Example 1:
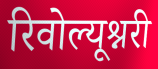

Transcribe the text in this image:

रिवोल्यूश्नरी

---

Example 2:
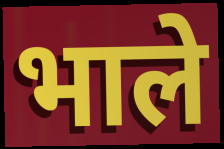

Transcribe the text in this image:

भाले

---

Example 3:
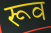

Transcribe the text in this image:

रूव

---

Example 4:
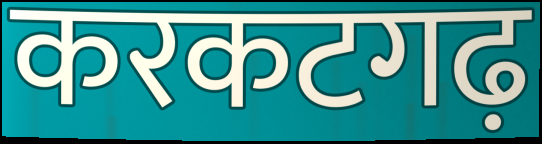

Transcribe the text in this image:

करकटगढ़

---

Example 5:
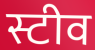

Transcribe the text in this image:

स्टीव